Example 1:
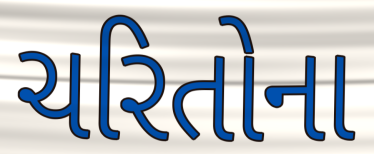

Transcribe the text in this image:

ચરિતોના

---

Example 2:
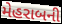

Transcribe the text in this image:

મેહરાબની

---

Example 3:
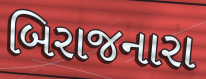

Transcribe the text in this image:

બિરાજનારા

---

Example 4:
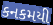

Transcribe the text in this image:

કનકમયી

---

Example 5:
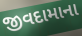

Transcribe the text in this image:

જીવદામાના